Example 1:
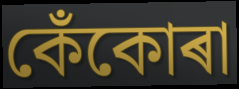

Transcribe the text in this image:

কেঁকোৰা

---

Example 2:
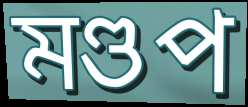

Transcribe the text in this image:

মণ্ডপ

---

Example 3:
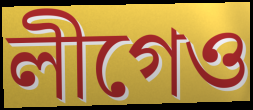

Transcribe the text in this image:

লীগেও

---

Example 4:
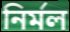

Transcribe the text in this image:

নিৰ্মল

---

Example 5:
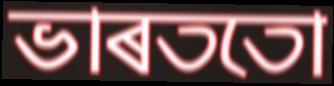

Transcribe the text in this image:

ভাৰততো